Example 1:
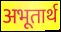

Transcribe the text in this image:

अभूतार्थ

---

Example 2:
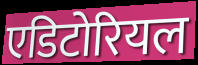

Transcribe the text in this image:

एडिटोरियल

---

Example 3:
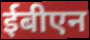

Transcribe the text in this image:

ईबीएन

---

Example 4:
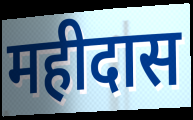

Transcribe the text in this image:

महीदास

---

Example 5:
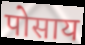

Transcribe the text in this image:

पोसाय